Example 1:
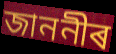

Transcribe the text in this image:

জাননীৰ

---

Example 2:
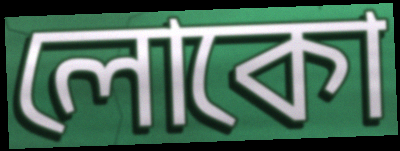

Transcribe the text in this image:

লোকো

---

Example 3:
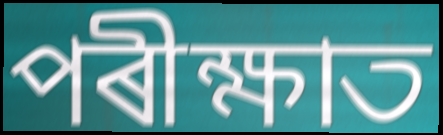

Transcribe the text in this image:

পৰীক্ষাত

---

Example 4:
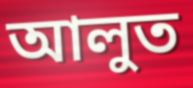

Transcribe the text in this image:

আলুত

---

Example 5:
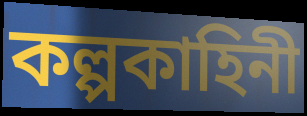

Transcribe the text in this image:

কল্পকাহিনী